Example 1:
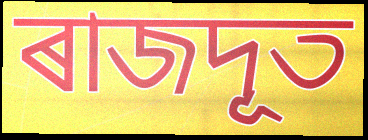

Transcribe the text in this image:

ৰাজদূত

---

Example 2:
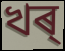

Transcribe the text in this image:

খৰ্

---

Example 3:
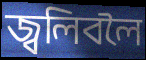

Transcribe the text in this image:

জ্বলিবলৈ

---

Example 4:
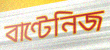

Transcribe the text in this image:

বাণ্টেনিজ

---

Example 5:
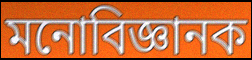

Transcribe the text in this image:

মনোবিজ্ঞানক